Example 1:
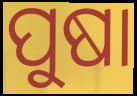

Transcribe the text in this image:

ପୁଷା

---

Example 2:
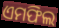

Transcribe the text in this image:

ଏମଫିଲ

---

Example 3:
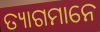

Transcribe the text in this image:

ତ୍ୟାଗମାନେ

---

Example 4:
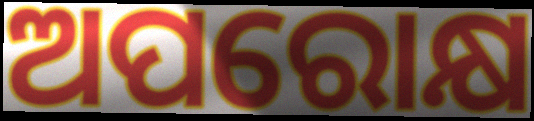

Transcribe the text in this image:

ଅପରୋକ୍ଷ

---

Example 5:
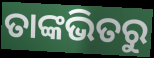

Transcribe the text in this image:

ତାଙ୍କଭିତରୁ